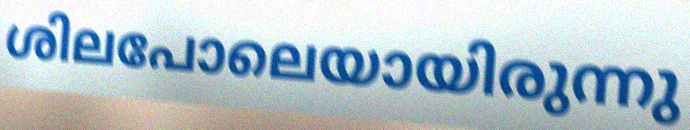
ശിലപോലെയായിരുന്നു